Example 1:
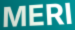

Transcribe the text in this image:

MERI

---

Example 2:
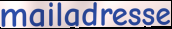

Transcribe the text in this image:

mailadresse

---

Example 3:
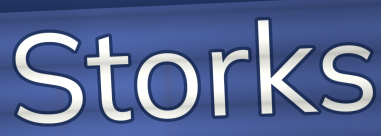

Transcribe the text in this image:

Storks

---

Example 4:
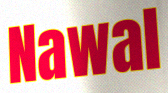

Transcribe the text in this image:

Nawal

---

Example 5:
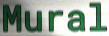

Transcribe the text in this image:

Mural